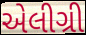
એલીગ્રી